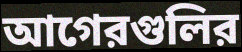
আগেরগুলির